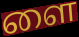
ளை